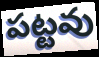
పట్టవు